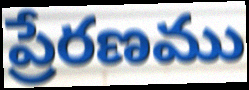
ప్రేరణము